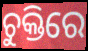
ଚୁକ୍ତିରେ